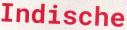
Indische